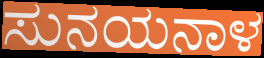
ಸುನಯನಾಳ